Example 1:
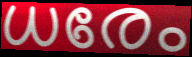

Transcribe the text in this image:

ധരേം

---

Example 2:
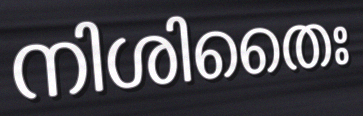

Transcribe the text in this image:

നിശിതൈഃ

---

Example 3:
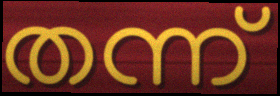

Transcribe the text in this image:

തന്ന്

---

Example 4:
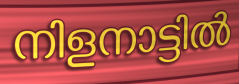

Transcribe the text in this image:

നിളനാട്ടിൽ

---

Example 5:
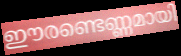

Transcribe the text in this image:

ഈരണ്ടെണ്ണമായി